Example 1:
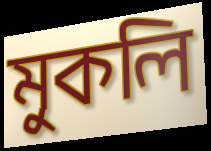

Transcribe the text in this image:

মুকলি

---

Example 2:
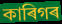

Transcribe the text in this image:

কাৰিগৰ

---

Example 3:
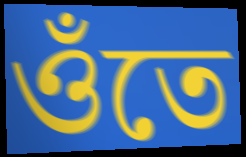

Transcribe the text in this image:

ওঁতে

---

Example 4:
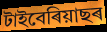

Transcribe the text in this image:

টাইবেৰিয়াছৰ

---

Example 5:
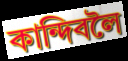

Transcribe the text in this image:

কান্দিবলৈ